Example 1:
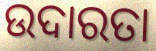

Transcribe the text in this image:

ଉଦାରତା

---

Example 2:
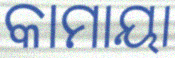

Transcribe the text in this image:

କାମାୟା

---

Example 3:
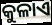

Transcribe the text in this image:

କୁଳାଏ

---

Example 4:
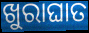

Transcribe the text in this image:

ଖୁରାଘାତ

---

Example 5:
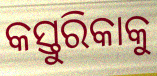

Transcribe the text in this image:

କସ୍ତୁରିକାକୁ